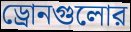
ড্রোনগুলোর